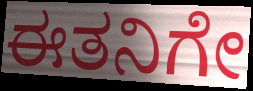
ಈತನಿಗೇ